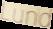
Lund